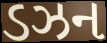
ડઝન